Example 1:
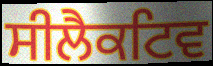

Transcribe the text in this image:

ਸੀਲੈਕਟਿਵ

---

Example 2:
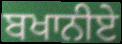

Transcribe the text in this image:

ਬਖਾਨੀਏ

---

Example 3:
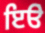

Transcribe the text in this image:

ਇੳਂ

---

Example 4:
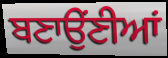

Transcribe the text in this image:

ਬਣਾਉਂਣੀਆਂ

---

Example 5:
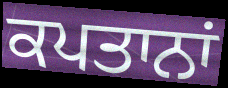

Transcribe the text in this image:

ਕਪਤਾਨਾਂ